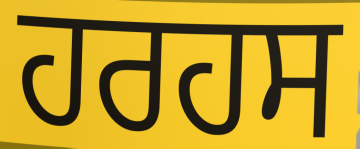
ਹਰਹਸ